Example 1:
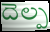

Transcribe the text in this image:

దెల్ప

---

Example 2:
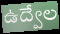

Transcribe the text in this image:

ఉద్వేల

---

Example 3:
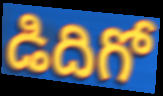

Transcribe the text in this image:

డిదిగో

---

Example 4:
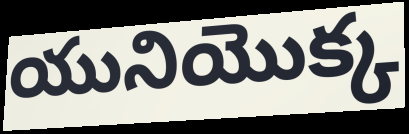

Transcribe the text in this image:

యునియొక్క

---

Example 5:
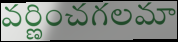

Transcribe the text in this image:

వర్ణించగలమా